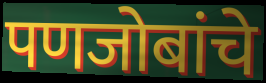
पणजोबांचे